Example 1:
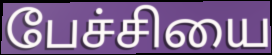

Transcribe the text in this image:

பேச்சியை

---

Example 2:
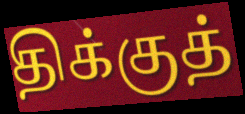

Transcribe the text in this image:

திக்குத்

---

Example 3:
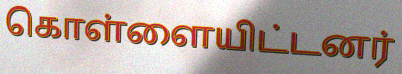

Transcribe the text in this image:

கொள்ளையிட்டனர்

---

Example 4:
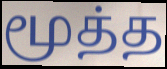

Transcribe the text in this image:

மூத்த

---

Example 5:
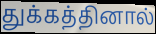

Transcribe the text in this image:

துக்கத்தினால்